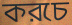
করচে